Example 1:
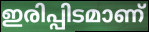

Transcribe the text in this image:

ഇരിപ്പിടമാണ്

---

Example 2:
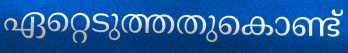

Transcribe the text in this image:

ഏറ്റെടുത്തതുകൊണ്ട്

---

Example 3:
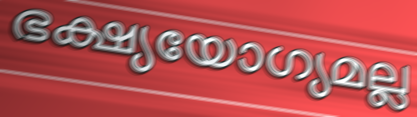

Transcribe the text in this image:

ഭക്ഷ്യയോഗ്യമല്ല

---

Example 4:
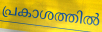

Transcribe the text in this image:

പ്രകാശത്തിൽ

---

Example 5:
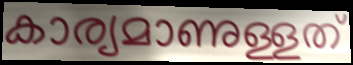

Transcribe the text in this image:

കാര്യമാണുള്ളത്